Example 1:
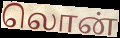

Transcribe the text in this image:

லொன்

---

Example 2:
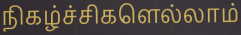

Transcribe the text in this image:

நிகழ்ச்சிகளெல்லாம்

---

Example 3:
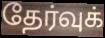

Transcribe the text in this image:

தேர்வுக்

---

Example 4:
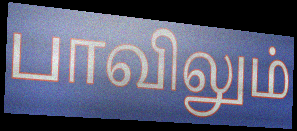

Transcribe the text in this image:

பாவிலும்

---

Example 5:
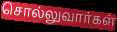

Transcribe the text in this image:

சொல்லுவார்கள்